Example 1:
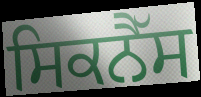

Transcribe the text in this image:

ਸਿਕਨੈੱਸ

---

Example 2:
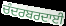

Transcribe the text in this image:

ਚੰਦਰਬਰਦਾਈ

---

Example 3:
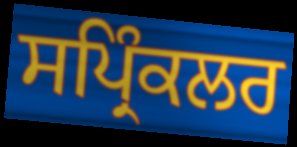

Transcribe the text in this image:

ਸਪ੍ਰਿੰਕਲਰ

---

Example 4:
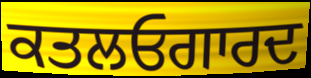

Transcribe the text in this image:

ਕਤਲਓਗਾਰਦ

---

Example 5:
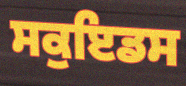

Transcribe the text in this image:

ਸਕੁਇਡਸ